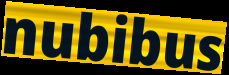
nubibus